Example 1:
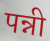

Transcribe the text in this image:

पन्नी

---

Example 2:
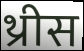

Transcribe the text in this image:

थ्रीस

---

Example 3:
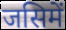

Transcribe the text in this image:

जसिमें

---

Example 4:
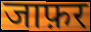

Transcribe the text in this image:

जाफ़र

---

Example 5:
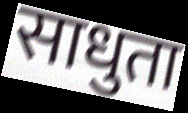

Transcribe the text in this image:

साधुता